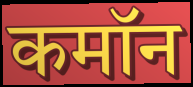
कमॉन